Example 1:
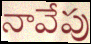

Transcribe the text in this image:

నావేపు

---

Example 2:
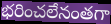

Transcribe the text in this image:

భరించలేనంతగా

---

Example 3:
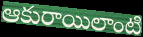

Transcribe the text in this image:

ఆకురాయిలాంటి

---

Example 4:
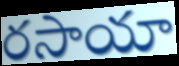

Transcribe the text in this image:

రసాయా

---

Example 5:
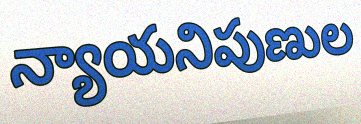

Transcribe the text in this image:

న్యాయనిపుణుల